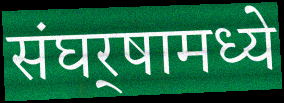
संघर्षामध्ये